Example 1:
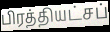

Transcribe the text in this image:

பிரத்தியட்சப்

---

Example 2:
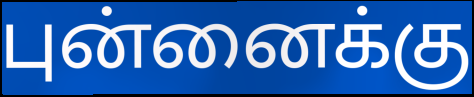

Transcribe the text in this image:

புன்னைக்கு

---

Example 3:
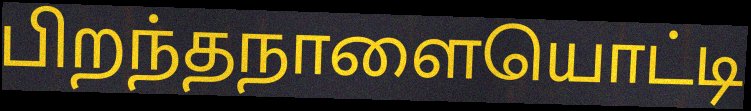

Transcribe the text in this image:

பிறந்தநாளையொட்டி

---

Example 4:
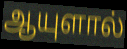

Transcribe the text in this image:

ஆயுளால்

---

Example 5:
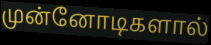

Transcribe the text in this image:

முன்னோடிகளால்